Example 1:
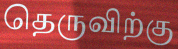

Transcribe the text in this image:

தெருவிற்கு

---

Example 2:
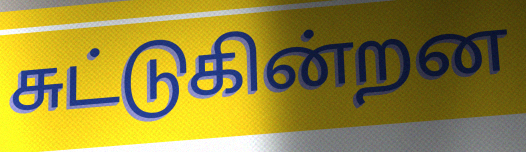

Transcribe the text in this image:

சுட்டுகின்றன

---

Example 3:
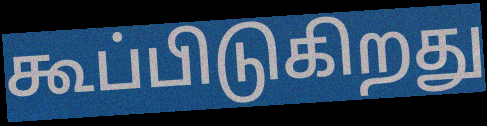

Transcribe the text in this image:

கூப்பிடுகிறது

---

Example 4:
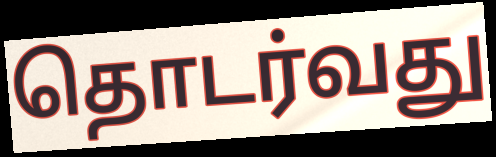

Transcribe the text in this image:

தொடர்வது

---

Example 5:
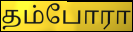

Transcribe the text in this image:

தம்போரா